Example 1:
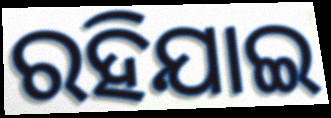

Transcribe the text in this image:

ରହିଯାଇ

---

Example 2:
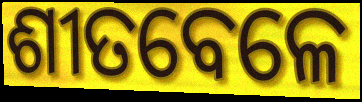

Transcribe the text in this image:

ଶୀତବେଳେ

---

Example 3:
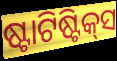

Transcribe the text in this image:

ଷ୍ଟାଟିଷ୍ଟିକ୍‍ସ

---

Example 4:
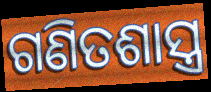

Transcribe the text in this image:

ଗଣିତଶାସ୍ତ୍ର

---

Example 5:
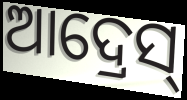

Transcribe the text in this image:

ଆଦ୍ରେସ୍